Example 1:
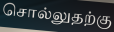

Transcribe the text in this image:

சொல்லுதற்கு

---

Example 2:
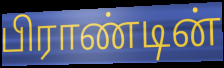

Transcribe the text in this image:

பிராண்டின்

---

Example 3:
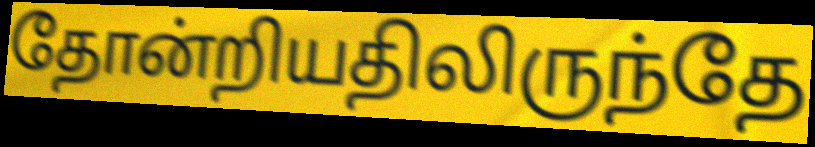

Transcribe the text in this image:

தோன்றியதிலிருந்தே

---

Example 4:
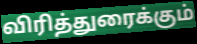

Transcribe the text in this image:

விரித்துரைக்கும்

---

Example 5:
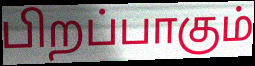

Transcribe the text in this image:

பிறப்பாகும்